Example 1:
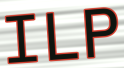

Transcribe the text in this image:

ILP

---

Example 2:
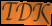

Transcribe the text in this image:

TDK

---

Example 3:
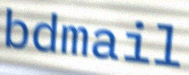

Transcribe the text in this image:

bdmail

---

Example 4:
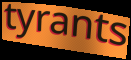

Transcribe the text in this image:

tyrants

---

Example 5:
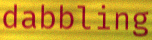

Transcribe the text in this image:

dabbling